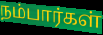
நம்பார்கள்